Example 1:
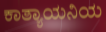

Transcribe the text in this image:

ಕಾತ್ಯಾಯನಿಯ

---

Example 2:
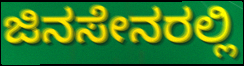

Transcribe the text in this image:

ಜಿನಸೇನರಲ್ಲಿ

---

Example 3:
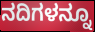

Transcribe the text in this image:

ನದಿಗಳನ್ನೂ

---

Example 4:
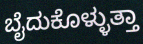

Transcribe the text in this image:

ಬೈದುಕೊಳ್ಳುತ್ತಾ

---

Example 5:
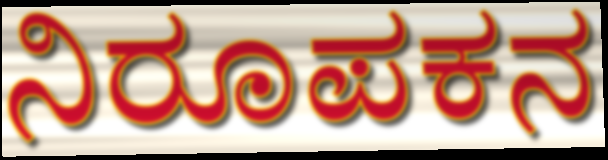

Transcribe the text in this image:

ನಿರೂಪಕನ